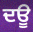
ਦਊ